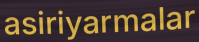
asiriyarmalar